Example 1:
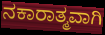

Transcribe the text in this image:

ನಕಾರಾತ್ಮವಾಗಿ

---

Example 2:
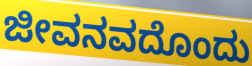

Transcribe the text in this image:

ಜೀವನವದೊಂದು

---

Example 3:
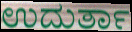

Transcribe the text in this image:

ಉದುರ್ತಾ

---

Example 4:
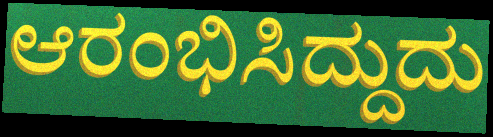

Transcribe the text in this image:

ಆರಂಭಿಸಿದ್ದುದು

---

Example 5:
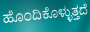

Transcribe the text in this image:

ಹೊಂದಿಕೊಳ್ಳುತ್ತದೆ